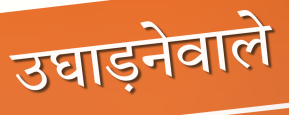
उघाड़नेवाले